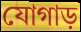
যোগাড়